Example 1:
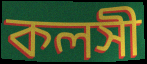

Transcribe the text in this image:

কলসী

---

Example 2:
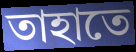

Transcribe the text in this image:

তাহাতে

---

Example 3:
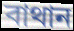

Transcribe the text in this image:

বাথান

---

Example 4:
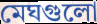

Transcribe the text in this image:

মেঘগুলো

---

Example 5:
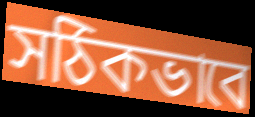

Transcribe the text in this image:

সঠিকভাবে